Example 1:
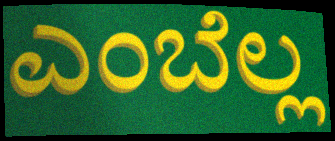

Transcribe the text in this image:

ಎಂಬೆಲ್ಲ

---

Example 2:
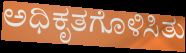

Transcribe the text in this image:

ಅಧಿಕೃತಗೊಳಿಸಿತು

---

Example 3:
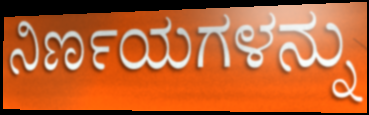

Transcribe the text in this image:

ನಿರ್ಣಯಗಳನ್ನು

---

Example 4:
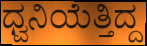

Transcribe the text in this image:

ಧ್ವನಿಯೆತ್ತಿದ್ದ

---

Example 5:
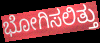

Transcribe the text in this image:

ಭೋಗಿಸಲಿತ್ತು